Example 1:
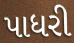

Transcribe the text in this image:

પાધરી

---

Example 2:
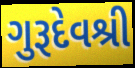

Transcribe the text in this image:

ગુરૂદેવશ્રી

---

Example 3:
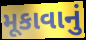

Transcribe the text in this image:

મૂકાવાનું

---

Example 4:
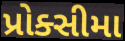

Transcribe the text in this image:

પ્રોક્સીમા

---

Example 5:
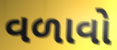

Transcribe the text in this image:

વળાવો